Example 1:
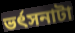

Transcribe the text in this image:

ভর্ৎসনাটা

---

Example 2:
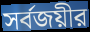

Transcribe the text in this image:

সর্বজয়ীর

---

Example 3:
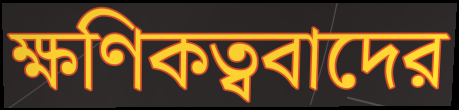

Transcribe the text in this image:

ক্ষণিকত্ববাদের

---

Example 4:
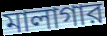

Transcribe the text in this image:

মালাগার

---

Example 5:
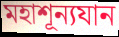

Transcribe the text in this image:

মহাশূন্যযান